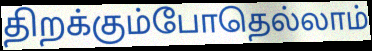
திறக்கும்போதெல்லாம்